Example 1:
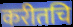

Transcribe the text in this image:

करीतचि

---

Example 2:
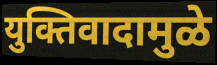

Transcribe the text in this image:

युक्तिवादामुळे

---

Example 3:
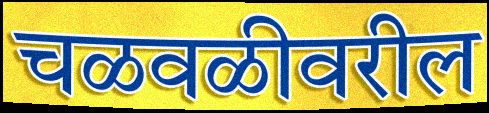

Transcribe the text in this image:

चळवळीवरील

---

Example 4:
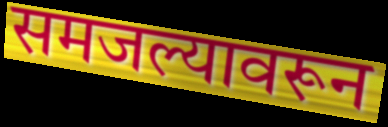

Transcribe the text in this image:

समजल्यावरून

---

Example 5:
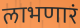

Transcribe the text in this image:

लाभणारं